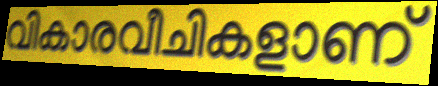
വികാരവീചികളാണ്